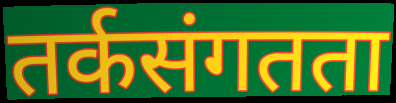
तर्कसंगतता